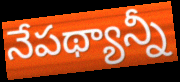
నేపథ్యాన్నీ